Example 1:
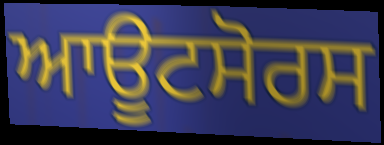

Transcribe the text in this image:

ਆਊਟਸੋਰਸ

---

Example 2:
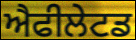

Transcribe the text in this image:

ਐਫੀਲੇਟਡ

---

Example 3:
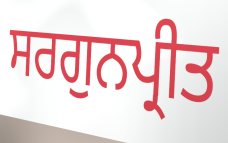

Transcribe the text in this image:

ਸਰਗੁਨਪ੍ਰੀਤ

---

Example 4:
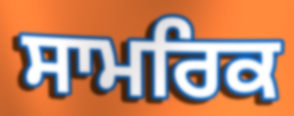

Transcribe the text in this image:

ਸਾਮਰਿਕ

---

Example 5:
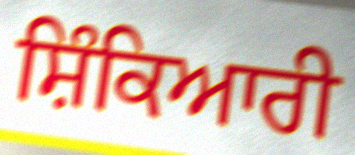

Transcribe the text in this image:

ਸ਼ਿੰਕਿਆਰੀ